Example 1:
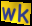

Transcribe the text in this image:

wk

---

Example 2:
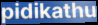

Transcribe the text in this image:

pidikathu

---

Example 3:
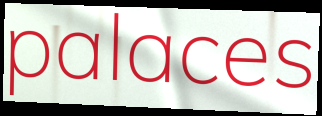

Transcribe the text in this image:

palaces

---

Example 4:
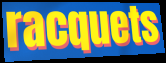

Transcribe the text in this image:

racquets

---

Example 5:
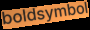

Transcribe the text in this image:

boldsymbol